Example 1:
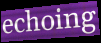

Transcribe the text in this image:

echoing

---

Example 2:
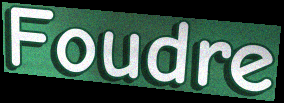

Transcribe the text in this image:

Foudre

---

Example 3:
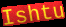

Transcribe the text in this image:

Ishtu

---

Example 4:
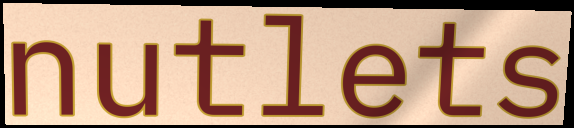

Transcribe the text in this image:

nutlets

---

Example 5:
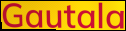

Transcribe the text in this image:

Gautala